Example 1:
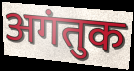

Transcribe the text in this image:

अगंतुक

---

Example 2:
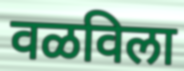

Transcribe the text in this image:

वळविला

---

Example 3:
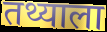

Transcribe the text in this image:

तथ्याला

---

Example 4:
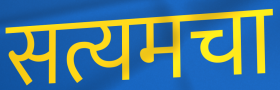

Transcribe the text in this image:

सत्यमचा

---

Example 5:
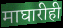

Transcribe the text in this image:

माघारीही